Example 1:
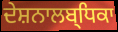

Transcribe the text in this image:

ਦੇਸ਼ਨਾਲਬ੍ਧਿਕਾ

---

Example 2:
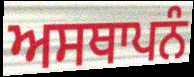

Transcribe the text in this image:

ਅਸਥਾਪਨੰ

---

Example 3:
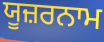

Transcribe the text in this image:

ਯੂਜ਼ਰਨਾਮ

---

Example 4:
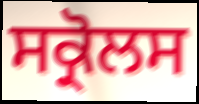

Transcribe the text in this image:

ਸਕ੍ਰੋਲਸ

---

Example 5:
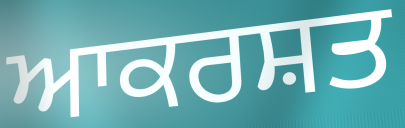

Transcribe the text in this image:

ਆਕਰਸ਼ਤ